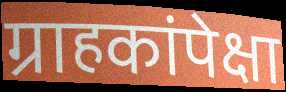
ग्राहकांपेक्षा